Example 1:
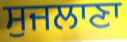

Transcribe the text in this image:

ਸੁਜਲਾਣਾ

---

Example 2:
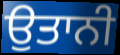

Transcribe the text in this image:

ਉਤਾਨੀ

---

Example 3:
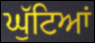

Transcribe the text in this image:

ਘੁੱਟਿਆਂ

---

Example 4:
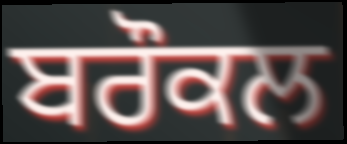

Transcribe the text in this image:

ਬਰੌਕਲ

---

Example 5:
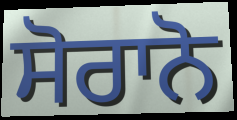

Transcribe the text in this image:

ਸੋਰਾਨੋ